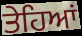
ਤੇਹਿਆਂ